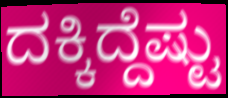
ದಕ್ಕಿದ್ದೆಷ್ಟು